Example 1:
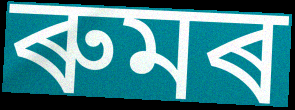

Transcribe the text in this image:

ৰুমৰ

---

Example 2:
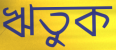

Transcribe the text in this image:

ঋতুক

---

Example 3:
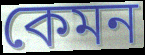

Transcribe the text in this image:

কেমন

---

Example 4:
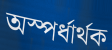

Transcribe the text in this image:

অস্পৰ্ধাৰ্থক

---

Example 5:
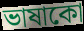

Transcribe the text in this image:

ভাষাকো